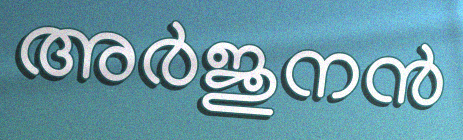
അർജുനൻ